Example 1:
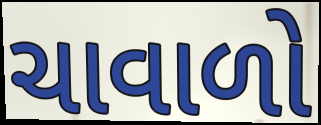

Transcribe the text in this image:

ચાવાળો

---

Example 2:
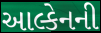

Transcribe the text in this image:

આલ્કેનની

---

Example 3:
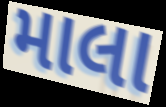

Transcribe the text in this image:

માલા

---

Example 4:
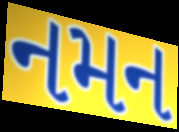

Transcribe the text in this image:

નમન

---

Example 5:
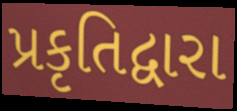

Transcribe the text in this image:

પ્રકૃતિદ્વારા